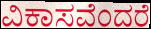
ವಿಕಾಸವೆಂದರೆ